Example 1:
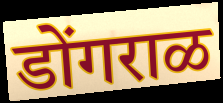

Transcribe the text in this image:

डोंगराळ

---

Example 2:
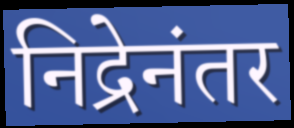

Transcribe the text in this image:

निद्रेनंतर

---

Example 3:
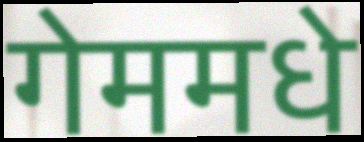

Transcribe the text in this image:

गेममधे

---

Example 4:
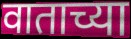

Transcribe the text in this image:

वाताच्या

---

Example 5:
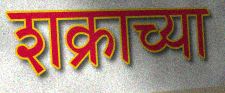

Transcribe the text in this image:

शक्राच्या